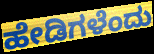
ಹೇಡಿಗಳೆಂದು